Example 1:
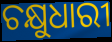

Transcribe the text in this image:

ଚକ୍ଷୁଧାରୀ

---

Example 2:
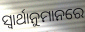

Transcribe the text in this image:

ସ୍ୱାର୍ଥାନୁମାନରେ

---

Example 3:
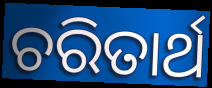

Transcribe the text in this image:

ଚରିତାର୍ଥ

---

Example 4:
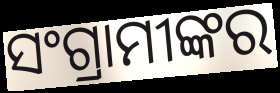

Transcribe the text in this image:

ସଂଗ୍ରାମୀଙ୍କର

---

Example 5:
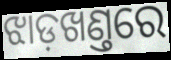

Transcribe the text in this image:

ଝାଡ଼ଖଣ୍ତରେ